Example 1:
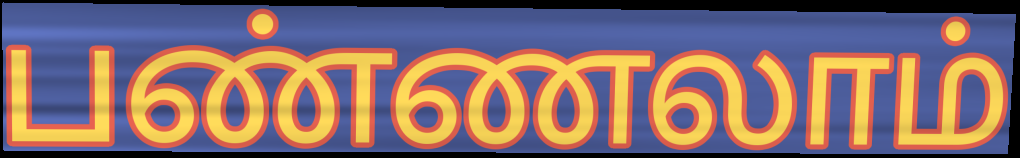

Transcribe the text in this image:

பண்ணலாம்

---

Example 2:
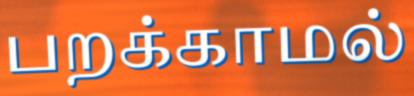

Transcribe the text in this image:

பறக்காமல்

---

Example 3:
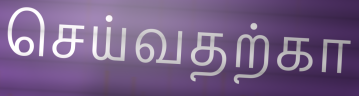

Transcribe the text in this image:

செய்வதற்கா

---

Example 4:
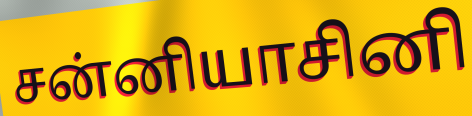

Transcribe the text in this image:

சன்னியாசினி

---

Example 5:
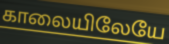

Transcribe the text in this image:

காலையிலேயே